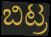
ಬಿಟ್ರ